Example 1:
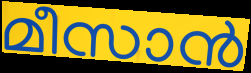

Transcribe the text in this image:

മീസാൻ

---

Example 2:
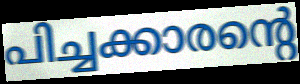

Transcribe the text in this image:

പിച്ചക്കാരന്റെ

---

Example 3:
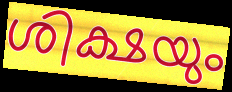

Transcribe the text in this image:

ശിക്ഷയും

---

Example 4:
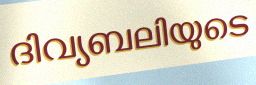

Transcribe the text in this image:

ദിവ്യബലിയുടെ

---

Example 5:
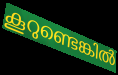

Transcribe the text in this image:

കൂറുണ്ടെങ്കിൽ